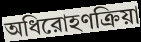
অধিরোহণক্রিয়া